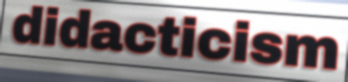
didacticism